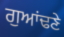
ਗੁਆਂਢਣੇ